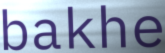
bakhe